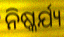
ନିଷ୍କର୍ଯ୍ୟ